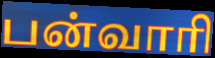
பன்வாரி